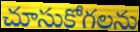
చూసుకోగలను